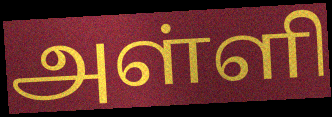
அள்ளி